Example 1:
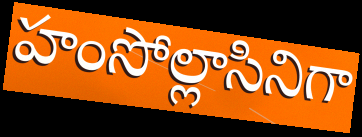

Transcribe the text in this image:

హంసోల్లాసినిగా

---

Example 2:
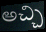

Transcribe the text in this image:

అచ్చి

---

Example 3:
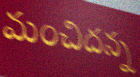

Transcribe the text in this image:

మంచిదన్న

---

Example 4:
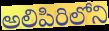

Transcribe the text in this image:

అలిపిరిలోని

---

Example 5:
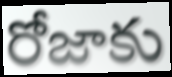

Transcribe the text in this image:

రోజాకు